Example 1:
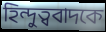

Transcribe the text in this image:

হিন্দুত্ববাদকে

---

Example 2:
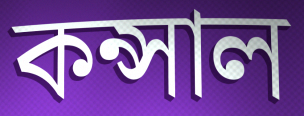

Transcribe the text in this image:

কন্সাল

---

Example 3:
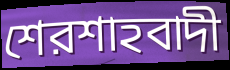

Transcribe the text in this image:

শেরশাহবাদী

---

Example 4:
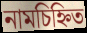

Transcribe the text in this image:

নামচিহ্নিত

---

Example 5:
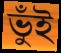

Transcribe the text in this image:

ভুঁই